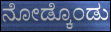
ನೋಡ್ಕೊಂಡು